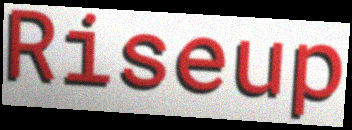
Riseup